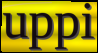
uppi